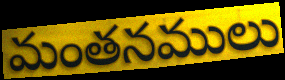
మంతనములు